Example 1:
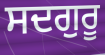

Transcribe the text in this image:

ਸਦਗੁਰੂ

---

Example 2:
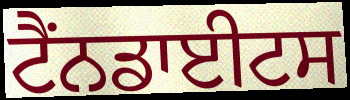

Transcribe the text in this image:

ਟੈਂਨਡਾਈਟਸ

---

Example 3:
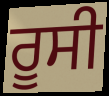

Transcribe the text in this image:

ਰੂਸੀ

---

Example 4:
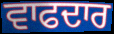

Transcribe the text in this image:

ਵਾਫਦਾਰ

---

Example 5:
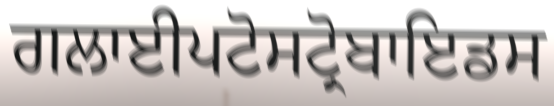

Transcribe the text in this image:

ਗਲਾਈਪਟੋਸਟ੍ਰੋਬਾਇਡਸ